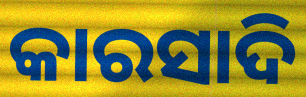
କାରସାଦି